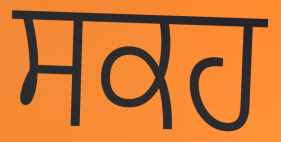
ਸਕਹ